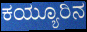
ಕಯ್ಯೂರಿನ